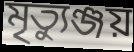
মৃত্যুঞ্জয়